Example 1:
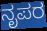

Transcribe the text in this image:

ನೃಪರ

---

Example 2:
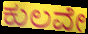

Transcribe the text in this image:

ಕುಲವೇ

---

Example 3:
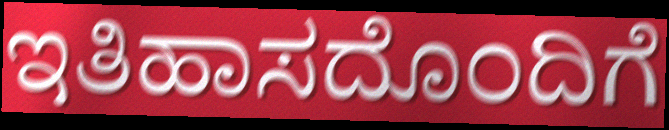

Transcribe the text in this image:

ಇತಿಹಾಸದೊಂದಿಗೆ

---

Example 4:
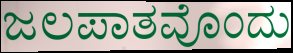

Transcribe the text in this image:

ಜಲಪಾತವೊಂದು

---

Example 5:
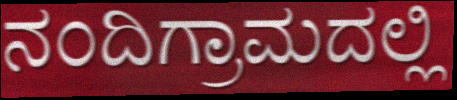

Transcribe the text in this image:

ನಂದಿಗ್ರಾಮದಲ್ಲಿ